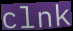
clnk